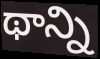
థాన్ని